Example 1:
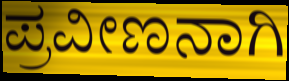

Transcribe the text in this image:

ಪ್ರವೀಣನಾಗಿ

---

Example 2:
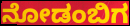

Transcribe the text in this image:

ನೋಡಂಬಿಗ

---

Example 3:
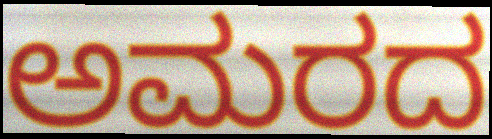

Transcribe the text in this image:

ಅಮರದ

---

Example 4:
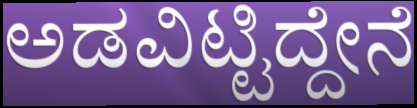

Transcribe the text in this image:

ಅಡವಿಟ್ಟಿದ್ದೇನೆ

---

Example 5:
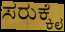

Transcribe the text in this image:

ಸರುಕ್ಕೈ